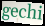
gechi